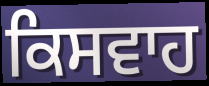
ਕਿਸਵਾਹ